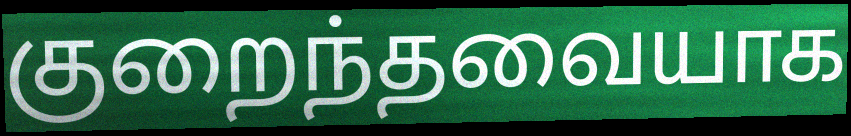
குறைந்தவையாக